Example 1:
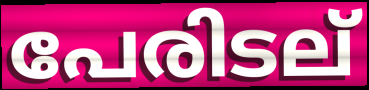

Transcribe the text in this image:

പേരിടല്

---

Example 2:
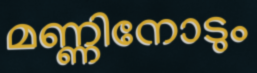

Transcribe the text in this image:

മണ്ണിനോടും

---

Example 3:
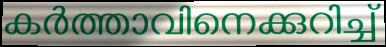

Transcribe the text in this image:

കർത്താവിനെക്കുറിച്ച്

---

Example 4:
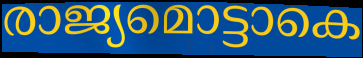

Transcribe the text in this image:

രാജ്യമൊട്ടാകെ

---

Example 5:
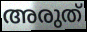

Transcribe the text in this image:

അരുത്